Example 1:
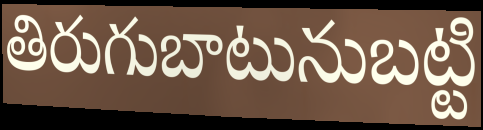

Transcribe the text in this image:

తిరుగుబాటునుబట్టి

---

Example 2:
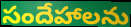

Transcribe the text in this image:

సందేహాలను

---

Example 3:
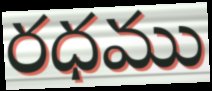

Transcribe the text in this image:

రధము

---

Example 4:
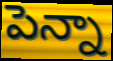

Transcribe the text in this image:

పెన్నా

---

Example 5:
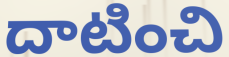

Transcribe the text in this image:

దాటించి